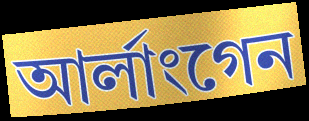
আৰ্লাংগেন